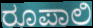
ರೂಪಾಲಿ